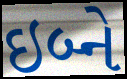
ઇબ્ને